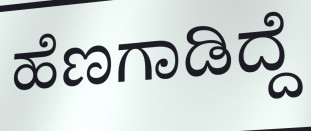
ಹೆಣಗಾಡಿದ್ದೆ